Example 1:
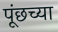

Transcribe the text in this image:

पूंछच्या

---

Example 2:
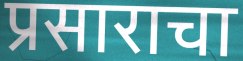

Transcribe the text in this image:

प्रसाराचा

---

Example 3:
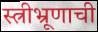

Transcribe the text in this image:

स्त्रीभ्रूणाची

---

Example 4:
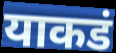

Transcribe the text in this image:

याकडं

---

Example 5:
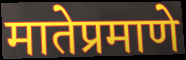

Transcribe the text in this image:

मातेप्रमाणे